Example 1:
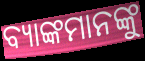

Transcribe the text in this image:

ବ୍ୟାଙ୍କମାନଙ୍କୁ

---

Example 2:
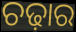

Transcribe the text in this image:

ଚଢ଼ାର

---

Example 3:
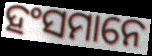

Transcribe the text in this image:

ହଂସମାନେ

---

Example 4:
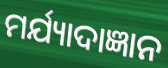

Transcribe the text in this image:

ମର୍ଯ୍ୟାଦାଜ୍ଞାନ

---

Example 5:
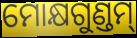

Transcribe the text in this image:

ମୋକ୍ଷଗୁଣ୍ଡମ୍